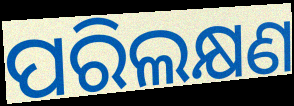
ପରିଲକ୍ଷଣ